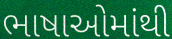
ભાષાઓમાંથી